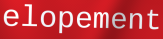
elopement